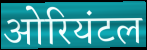
ओरियंटल